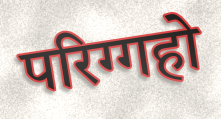
परिग्गहो